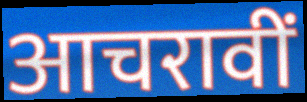
आचरावीं